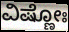
ವಿಷ್ಣೋಃ